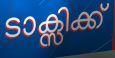
ടാക്സിക്ക്